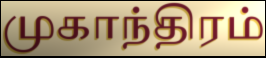
முகாந்திரம்